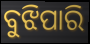
ବୁଝିପାରି